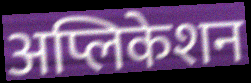
अप्लिकेशन